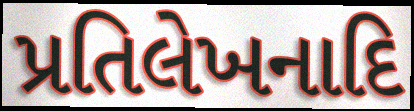
પ્રતિલેખનાદિ